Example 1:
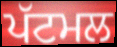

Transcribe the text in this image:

ਪੱਟਮਲ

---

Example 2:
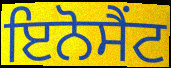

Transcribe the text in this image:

ਇਨੋਸੈਂਟ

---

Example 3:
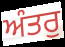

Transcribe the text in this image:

ਅੰਤਰੁ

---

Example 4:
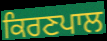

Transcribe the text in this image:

ਕਿਰਣਪਾਲ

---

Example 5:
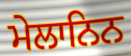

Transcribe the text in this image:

ਮੇਲਾਨਿਨ